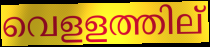
വെളളത്തില്